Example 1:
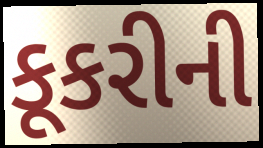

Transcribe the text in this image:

કૂકરીની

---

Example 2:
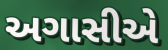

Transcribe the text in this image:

અગાસીએ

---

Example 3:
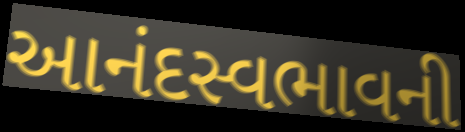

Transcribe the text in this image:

આનંદસ્વભાવની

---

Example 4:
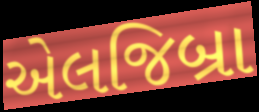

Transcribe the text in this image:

એલજિબ્રા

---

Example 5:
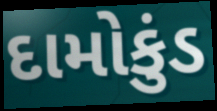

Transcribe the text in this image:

દામોકુંડ